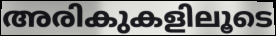
അരികുകളിലൂടെ